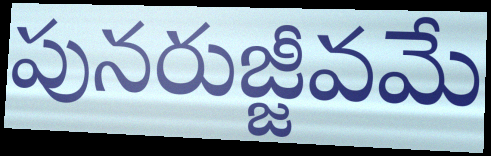
పునరుజ్జీవమే